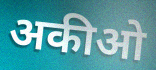
अकीओ